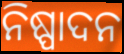
ନିଷ୍ପାଦନ